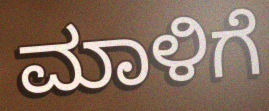
ಮಾಳಿಗೆ